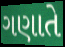
ગણાતે